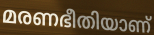
മരണഭീതിയാണ്